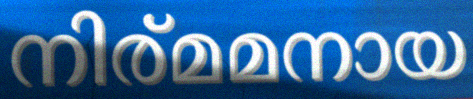
നിര്മമനായ